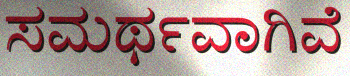
ಸಮರ್ಥವಾಗಿವೆ